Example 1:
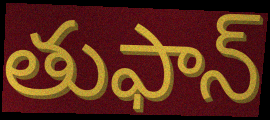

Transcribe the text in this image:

తుఫాన్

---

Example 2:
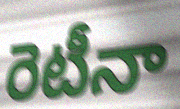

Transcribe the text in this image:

రెటీనా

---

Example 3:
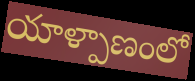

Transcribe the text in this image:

యాళ్పాణంలో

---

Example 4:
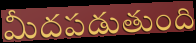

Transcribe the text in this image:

మీదపడుతుంది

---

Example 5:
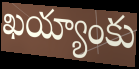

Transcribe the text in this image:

ఖయ్యాంకు